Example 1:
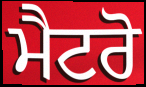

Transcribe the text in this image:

ਮੈਟਰੋ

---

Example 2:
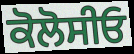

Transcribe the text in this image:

ਕੋਲੋਸੀਓ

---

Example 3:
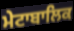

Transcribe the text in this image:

ਮੇਟਾਬਾਲਿਕ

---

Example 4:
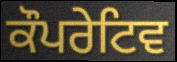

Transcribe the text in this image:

ਕੌਪਰੇਟਿਵ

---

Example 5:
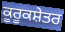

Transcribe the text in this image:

ਕੂਰੂਕਸ਼ੇਤਰ